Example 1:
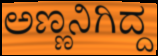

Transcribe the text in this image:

ಅಣ್ಣನಿಗಿದ್ದ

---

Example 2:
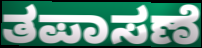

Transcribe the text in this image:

ತಪಾಸಣೆ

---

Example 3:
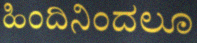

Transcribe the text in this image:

ಹಿಂದಿನಿಂದಲೂ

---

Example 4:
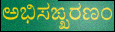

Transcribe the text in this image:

ಅಭಿಸಙ್ಖರಣಂ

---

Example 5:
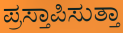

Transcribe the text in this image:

ಪ್ರಸ್ತಾಪಿಸುತ್ತಾ